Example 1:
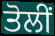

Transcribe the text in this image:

ਤੋਲੀਂ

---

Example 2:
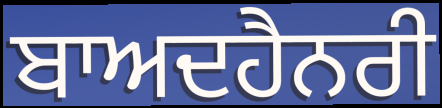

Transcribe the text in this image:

ਬਾਅਦਹੈਨਰੀ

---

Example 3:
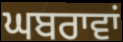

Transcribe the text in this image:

ਘਬਰਾਵਾਂ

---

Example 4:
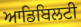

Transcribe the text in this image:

ਆਡਿਬਿਲਟੀ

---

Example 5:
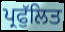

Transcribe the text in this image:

ਪ੍ਰਫੁੱਲਿਤ